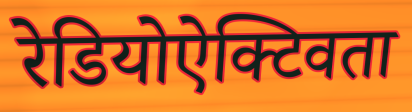
रेडियोऐक्टिवता